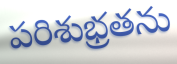
పరిశుభ్రతను